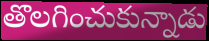
తొలగించుకున్నాడు